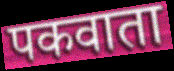
पकवाता